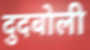
दुदबोली